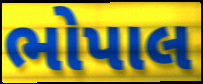
ભોપાલ